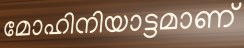
മോഹിനിയാട്ടമാണ്